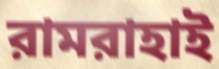
রামরাহাই